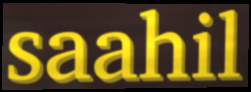
saahil